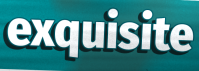
exquisite